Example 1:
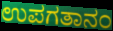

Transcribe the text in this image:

ಉಪಗತಾನಂ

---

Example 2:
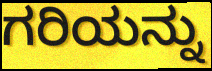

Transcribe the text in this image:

ಗರಿಯನ್ನು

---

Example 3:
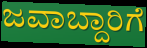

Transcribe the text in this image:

ಜವಾಬ್ದಾರಿಗೆ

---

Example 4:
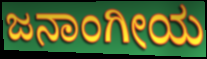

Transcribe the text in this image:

ಜನಾಂಗೀಯ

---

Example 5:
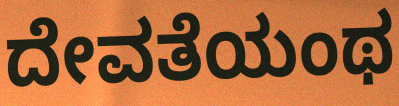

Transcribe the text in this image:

ದೇವತೆಯಂಥ